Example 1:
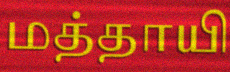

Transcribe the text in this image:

மத்தாயி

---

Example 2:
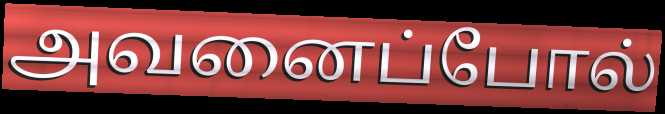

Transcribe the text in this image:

அவனைப்போல்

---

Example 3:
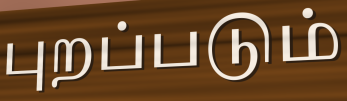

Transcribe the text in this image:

புறப்படும்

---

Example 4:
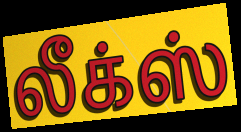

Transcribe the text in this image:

லீக்ஸ்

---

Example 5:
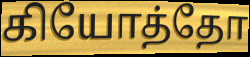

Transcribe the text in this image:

கியோத்தோ